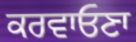
ਕਰਵਾਓਣਾ